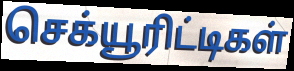
செக்யூரிட்டிகள்